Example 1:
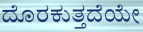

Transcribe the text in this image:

ದೊರಕುತ್ತದೆಯೇ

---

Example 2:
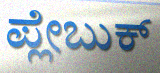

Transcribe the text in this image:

ಪ್ಲೇಬುಕ್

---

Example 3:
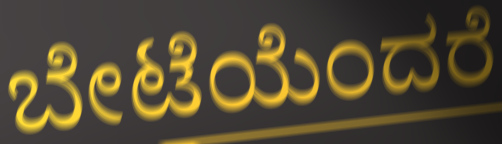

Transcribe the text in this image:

ಬೇಟೆಯೆಂದರೆ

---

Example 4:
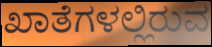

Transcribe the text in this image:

ಖಾತೆಗಳಲ್ಲಿರುವ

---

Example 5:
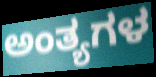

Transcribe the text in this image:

ಅಂತ್ಯಗಳ